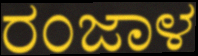
ರಂಜಾಳ